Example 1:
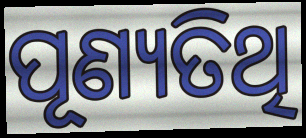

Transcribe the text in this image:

ପୂଣ୍ୟତିଥି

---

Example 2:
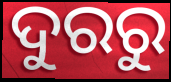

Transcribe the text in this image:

ଦୁରରୁ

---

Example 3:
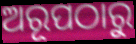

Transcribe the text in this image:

ଅରୂପଠାରୁ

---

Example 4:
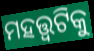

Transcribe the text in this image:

ମହତ୍ତ୍ୱଟିକୁ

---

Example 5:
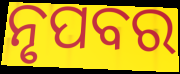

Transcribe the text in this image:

ନୃପବର